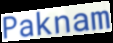
Paknam